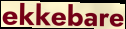
ekkebare